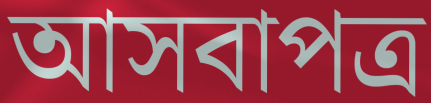
আসবাপত্র